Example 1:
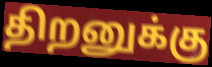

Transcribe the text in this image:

திறனுக்கு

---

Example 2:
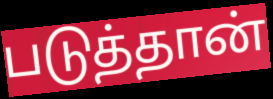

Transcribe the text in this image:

படுத்தான்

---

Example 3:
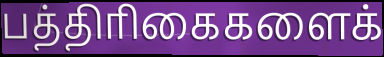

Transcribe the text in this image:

பத்திரிகைகளைக்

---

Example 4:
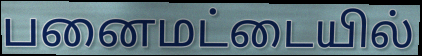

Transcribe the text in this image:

பனைமட்டையில்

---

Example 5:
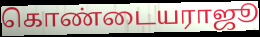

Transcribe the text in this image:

கொண்டையராஜூ